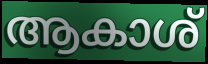
ആകാശ്